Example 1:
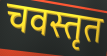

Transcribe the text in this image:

चवस्तृत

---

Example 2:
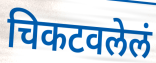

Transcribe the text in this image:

चिकटवलेलं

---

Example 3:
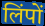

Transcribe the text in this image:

लिंपों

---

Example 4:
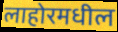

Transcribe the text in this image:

लाहोरमधील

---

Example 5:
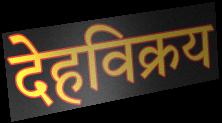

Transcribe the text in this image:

देहविक्रय